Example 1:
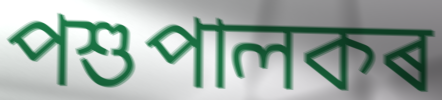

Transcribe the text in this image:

পশুপালকৰ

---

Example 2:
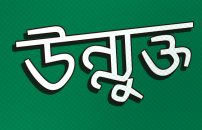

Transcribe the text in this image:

উন্মুক্ত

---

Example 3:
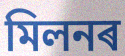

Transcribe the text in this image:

মিলনৰ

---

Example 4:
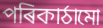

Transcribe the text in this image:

পৰিকাঠামো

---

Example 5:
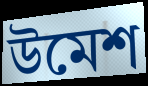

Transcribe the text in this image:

উমেশ